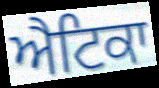
ਐਟਿਕਾ